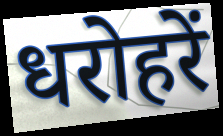
धरोहरें